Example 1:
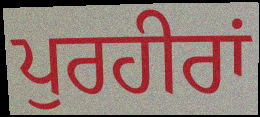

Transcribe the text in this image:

ਪੁਰਹੀਰਾਂ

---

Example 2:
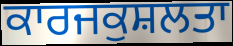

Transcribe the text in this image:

ਕਾਰਜਕੁਸ਼ਲਤਾ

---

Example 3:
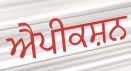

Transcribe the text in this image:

ਐਪੀਕਸ਼ਨ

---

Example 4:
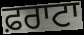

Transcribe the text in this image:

ਫ਼ਰਾਟਾ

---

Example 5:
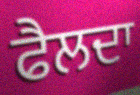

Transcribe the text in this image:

ਫੈਲਦਾ